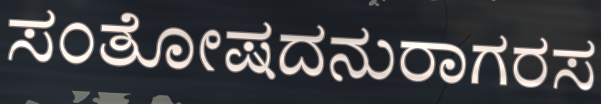
ಸಂತೋಷದನುರಾಗರಸ